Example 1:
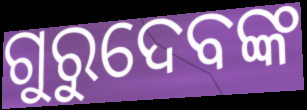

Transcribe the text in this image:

ଗୁରୁଦେବଙ୍କ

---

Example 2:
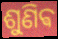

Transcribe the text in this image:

ଶୁଣିଵ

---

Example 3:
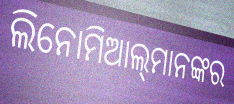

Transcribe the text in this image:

ଲିନୋମିଆଲ୍‌ମାନଙ୍କର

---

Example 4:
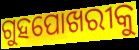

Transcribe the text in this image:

ଗୁହପୋଖରୀକୁ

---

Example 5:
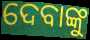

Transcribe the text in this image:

ଦେବାଙ୍କୁ